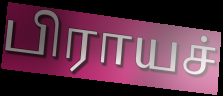
பிராயச்